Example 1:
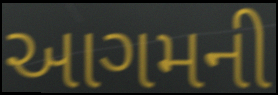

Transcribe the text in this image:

આગમની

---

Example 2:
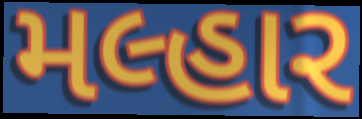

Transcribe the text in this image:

મલ્હાર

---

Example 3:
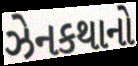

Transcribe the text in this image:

ઝેનકથાનો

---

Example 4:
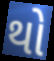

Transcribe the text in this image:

થો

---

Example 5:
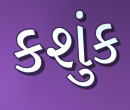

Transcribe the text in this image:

કશુંક